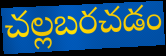
చల్లబరచడం